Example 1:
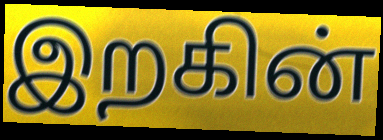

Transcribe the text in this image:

இறகின்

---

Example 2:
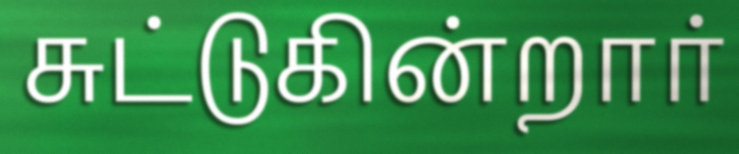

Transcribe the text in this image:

சுட்டுகின்றார்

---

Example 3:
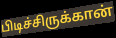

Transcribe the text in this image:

பிடிச்சிருக்கான்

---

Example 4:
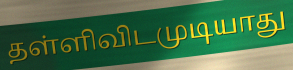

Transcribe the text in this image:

தள்ளிவிடமுடியாது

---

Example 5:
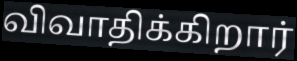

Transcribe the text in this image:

விவாதிக்கிறார்